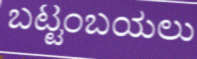
ಬಟ್ಟಂಬಯಲು